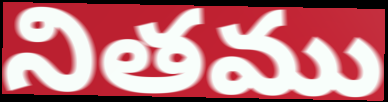
నితము